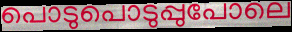
പൊടുപൊടുപ്പുപോലെ